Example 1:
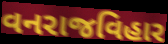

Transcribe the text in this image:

વનરાજવિહાર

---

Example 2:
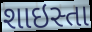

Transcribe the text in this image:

શાઇસ્તા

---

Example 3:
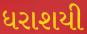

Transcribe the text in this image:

ધરાશયી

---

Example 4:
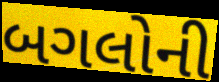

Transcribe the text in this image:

બગલોની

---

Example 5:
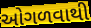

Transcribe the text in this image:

ઓગળવાથી